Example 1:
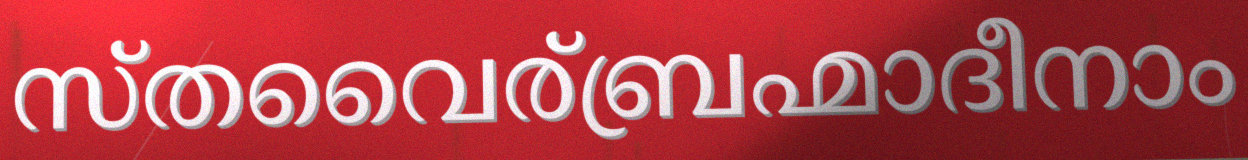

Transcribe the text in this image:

സ്തവൈര്ബ്രഹ്മാദീനാം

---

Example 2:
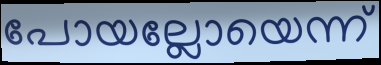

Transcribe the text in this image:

പോയല്ലോയെന്ന്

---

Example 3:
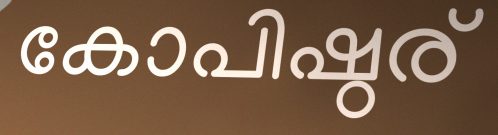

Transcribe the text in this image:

കോപിഷ്ഠര്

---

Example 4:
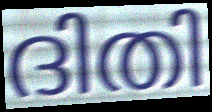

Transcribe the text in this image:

ദിതി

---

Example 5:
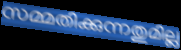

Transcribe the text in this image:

സമ്മതിക്കുന്നതുമില്ല